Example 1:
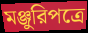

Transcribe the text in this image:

মঞ্জুরিপত্রে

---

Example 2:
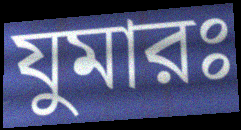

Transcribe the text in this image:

যুমারঃ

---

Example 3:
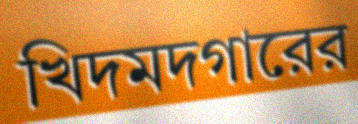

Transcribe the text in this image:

খিদমদগারের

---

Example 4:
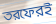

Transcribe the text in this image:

তরফেরই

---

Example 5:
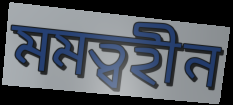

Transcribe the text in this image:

মমত্বহীন